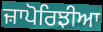
ਜ਼ਾਪੋਰਿਝੀਆ